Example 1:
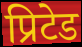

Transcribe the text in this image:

प्रिटेड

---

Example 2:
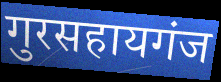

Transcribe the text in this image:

गुरसहायगंज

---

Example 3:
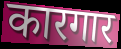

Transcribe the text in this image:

कारगार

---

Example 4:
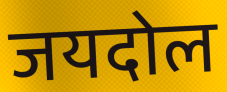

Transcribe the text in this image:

जयदोल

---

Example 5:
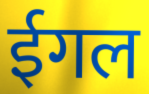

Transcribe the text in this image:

ईगल